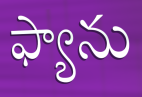
ఫ్యాను